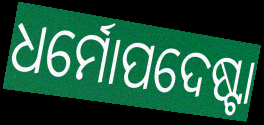
ଧର୍ମୋପଦେଷ୍ଟା